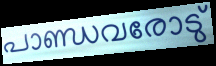
പാണ്ഡവരോടു്